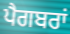
ਪੈਗਬਰਾਂ